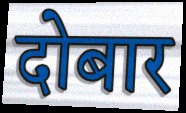
दोबार